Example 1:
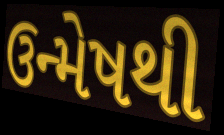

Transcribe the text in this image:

ઉન્મેષથી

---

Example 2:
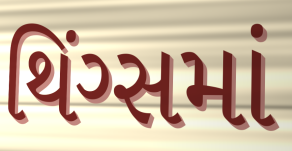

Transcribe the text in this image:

થિંગ્સમાં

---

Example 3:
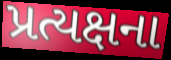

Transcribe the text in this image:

પ્રત્યક્ષના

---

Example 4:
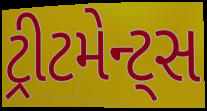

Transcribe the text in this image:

ટ્રીટમેન્ટ્સ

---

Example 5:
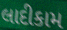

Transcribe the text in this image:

લાદીકામ